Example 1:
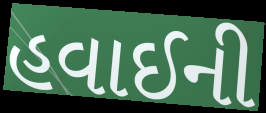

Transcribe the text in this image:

હવાઈની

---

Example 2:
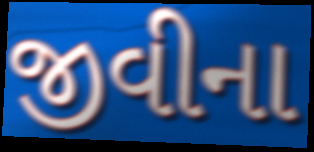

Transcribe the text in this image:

જીવીના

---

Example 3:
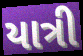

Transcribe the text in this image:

યાત્રી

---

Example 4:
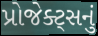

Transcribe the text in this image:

પ્રોજેક્ટ્સનું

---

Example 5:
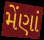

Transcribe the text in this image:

મેંણાં